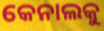
କେନାଲକୁ